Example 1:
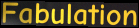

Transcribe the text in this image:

Fabulation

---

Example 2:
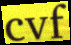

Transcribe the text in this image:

cvf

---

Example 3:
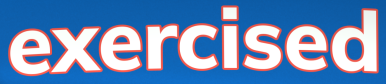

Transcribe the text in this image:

exercised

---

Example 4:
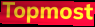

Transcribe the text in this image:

Topmost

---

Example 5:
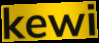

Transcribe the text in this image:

kewi